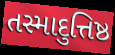
તસ્માદુત્તિષ્ઠ